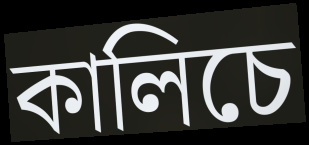
কালিচে